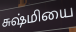
சுஷ்மியை